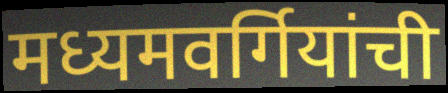
मध्यमवर्गियांची